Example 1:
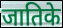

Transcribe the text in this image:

जातिके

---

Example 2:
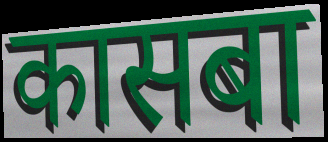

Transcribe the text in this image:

कासबा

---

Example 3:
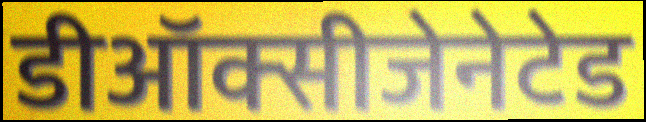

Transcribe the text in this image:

डीऑक्सीजेनेटेड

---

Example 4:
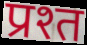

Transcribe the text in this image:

प्रश्त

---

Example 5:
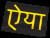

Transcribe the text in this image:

ऐया